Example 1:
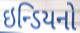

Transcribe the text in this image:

ઇન્ડિયનો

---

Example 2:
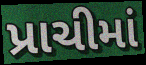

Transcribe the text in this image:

પ્રાચીમાં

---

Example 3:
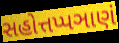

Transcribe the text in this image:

સહોત્તપ્પઞાણં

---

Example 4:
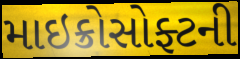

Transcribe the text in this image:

માઇક્રોસોફ્ટની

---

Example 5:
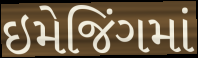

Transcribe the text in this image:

ઇમેજિંગમાં